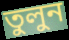
তুলুন